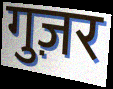
गुज़र